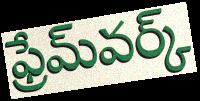
ఫ్రేమ్‌వర్క్